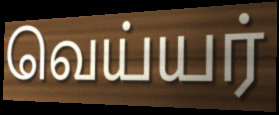
வெய்யர்